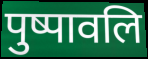
पुष्पावलि